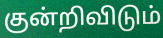
குன்றிவிடும்